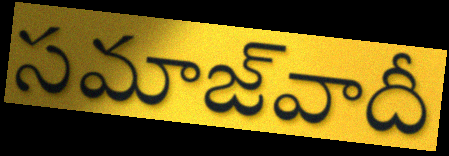
సమాజ్‌వాదీ